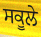
ਸਕੂਲੇ